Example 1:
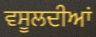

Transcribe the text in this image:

ਵਸੂਲਦੀਆਂ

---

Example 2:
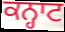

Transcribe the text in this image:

ਕਨ੍ਹਾਟ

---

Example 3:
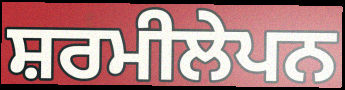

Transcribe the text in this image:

ਸ਼ਰਮੀਲੇਪਨ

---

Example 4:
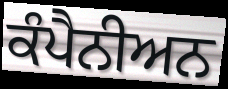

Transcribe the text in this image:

ਕੰਪੈਨੀਅਨ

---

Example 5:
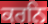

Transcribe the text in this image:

ਕਰਨਿ